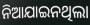
ନିଆଯାଇନଥିଲା